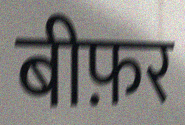
बीफ़र